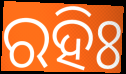
ରହିଃ